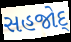
સહજોદ્